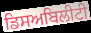
ਡਿਸਅਬਿਲੀਟੀ